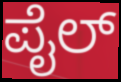
ಪೈಲ್